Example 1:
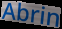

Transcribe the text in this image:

Abrin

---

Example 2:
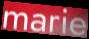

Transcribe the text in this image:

marie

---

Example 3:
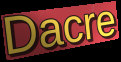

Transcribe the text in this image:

Dacre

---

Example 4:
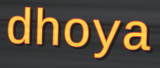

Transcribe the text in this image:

dhoya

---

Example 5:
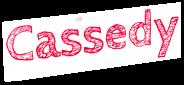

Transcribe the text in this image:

Cassedy